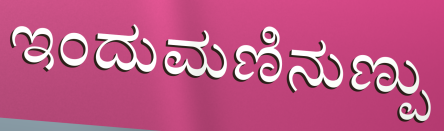
ಇಂದುಮಣಿನುಣ್ಪು